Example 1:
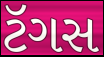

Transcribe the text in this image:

ટૅગસ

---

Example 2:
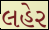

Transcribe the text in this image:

લહેર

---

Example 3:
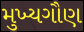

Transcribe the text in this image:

મુખ્યગૌણ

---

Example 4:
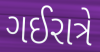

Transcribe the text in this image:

ગઈરાત્રે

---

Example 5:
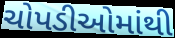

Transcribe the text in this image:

ચોપડીઓમાંથી